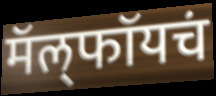
मॅल्फॉयचं